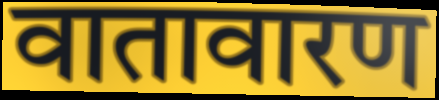
वातावारण